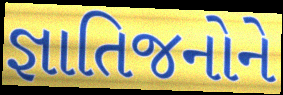
જ્ઞાતિજનોને